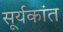
सूर्यकांत